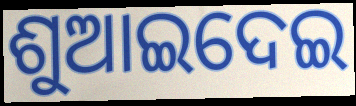
ଶୁଆଇଦେଇ